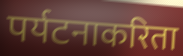
पर्यटनाकरिता